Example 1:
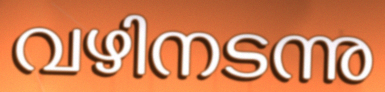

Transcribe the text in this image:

വഴിനടന്നു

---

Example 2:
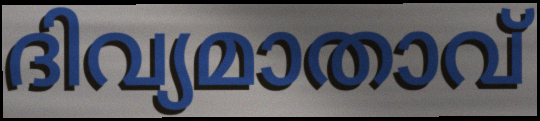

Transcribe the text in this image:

ദിവ്യമാതാവ്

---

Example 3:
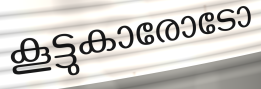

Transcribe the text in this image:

കൂട്ടുകാരോടോ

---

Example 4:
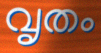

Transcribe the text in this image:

വൃതം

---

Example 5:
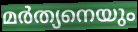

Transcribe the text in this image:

മർത്യനെയും